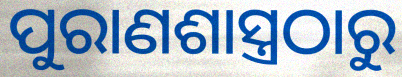
ପୁରାଣଶାସ୍ତ୍ରଠାରୁ